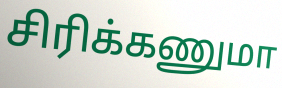
சிரிக்கணுமா